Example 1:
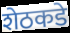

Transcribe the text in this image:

शेठकडे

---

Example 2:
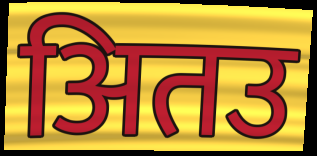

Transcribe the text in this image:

अितउ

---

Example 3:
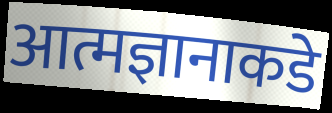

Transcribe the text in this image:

आत्मज्ञानाकडे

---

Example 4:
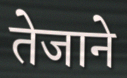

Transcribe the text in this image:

तेजाने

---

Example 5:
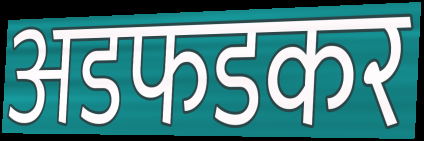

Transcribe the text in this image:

अडफडकर